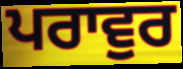
ਪਰਾਵੁਰ